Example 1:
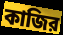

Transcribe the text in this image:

কাজির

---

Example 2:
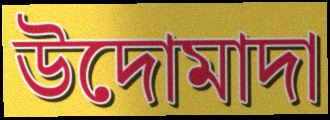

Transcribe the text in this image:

উদোমাদা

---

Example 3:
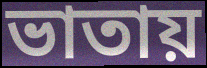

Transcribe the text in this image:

ভাতায়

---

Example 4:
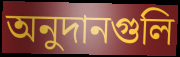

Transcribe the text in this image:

অনুদানগুলি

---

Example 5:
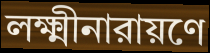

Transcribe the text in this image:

লক্ষ্মীনারায়ণে